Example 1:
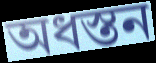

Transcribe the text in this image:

অধস্তন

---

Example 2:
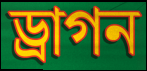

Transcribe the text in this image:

ড্রাগন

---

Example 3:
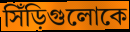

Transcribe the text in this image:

সিঁড়িগুলোকে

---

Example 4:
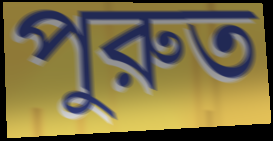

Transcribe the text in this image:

পুরুত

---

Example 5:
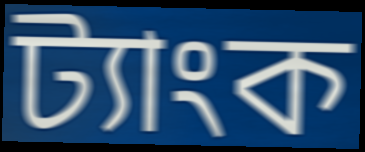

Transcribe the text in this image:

ট্যাংক